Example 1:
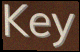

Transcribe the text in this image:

Key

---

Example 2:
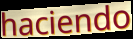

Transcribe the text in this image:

haciendo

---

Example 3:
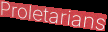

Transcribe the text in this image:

Proletarians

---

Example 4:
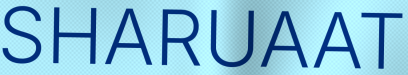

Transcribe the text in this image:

SHARUAAT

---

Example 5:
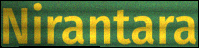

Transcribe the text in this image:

Nirantara